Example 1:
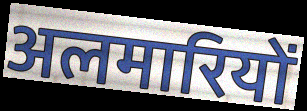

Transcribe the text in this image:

अलमारियों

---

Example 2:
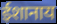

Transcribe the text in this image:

ईशानाय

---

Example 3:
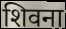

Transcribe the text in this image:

शिवना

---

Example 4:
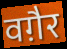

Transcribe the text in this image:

वग़ैर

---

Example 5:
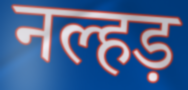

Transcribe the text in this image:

नल्हड़